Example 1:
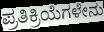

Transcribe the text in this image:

ಪ್ರತಿಕ್ರಿಯೆಗಳೇನು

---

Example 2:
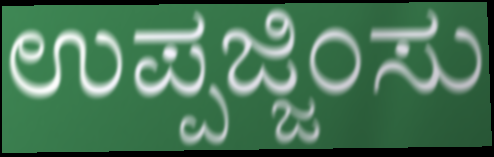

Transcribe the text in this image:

ಉಪ್ಪಜ್ಜಿಂಸು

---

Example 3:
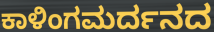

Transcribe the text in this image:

ಕಾಳಿಂಗಮರ್ದನದ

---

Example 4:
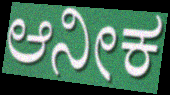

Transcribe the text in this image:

ಆನೀಕ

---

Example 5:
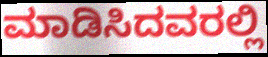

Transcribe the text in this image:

ಮಾಡಿಸಿದವರಲ್ಲಿ